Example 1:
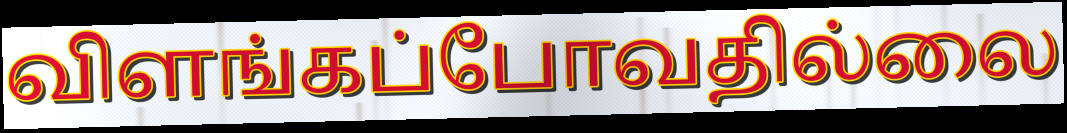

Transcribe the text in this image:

விளங்கப்போவதில்லை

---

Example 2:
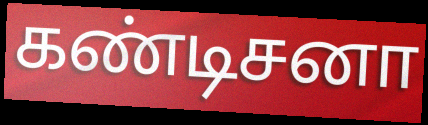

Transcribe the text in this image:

கண்டிசனா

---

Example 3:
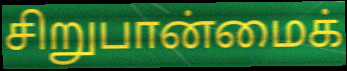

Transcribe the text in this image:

சிறுபான்மைக்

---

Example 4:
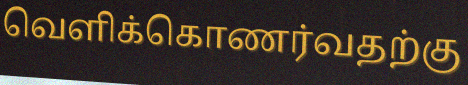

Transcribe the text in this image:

வெளிக்கொணர்வதற்கு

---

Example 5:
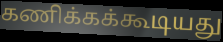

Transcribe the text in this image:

கணிக்கக்கூடியது